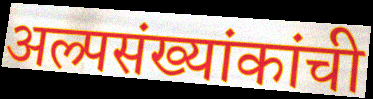
अल्पसंख्यांकांची